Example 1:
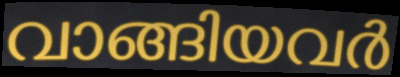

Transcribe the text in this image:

വാങ്ങിയവർ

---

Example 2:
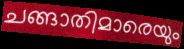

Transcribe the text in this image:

ചങ്ങാതിമാരെയും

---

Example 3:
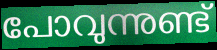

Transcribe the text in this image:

പോവുന്നുണ്ട്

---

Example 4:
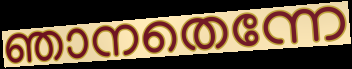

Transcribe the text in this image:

ഞാനതെന്നേ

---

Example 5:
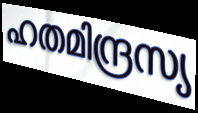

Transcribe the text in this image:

ഹതമിന്ദ്രസ്യ